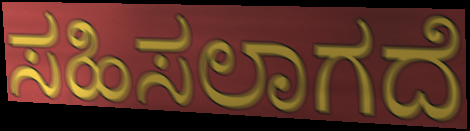
ಸಹಿಸಲಾಗದೆ